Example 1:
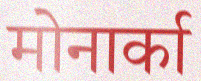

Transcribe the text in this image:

मोनार्का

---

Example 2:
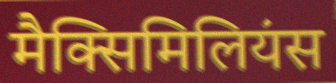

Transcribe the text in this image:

मैक्सिमिलियंस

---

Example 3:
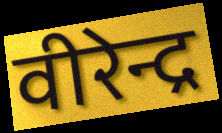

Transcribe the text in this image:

वीरेन्द्र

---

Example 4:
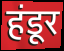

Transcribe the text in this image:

हंडूर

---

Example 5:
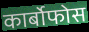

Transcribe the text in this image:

कार्बोफोस